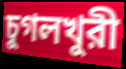
চুগলখুরী